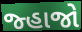
જ્હાજો